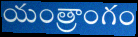
యంత్రాంగం